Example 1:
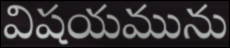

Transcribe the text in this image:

విషయమును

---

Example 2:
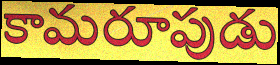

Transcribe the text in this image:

కామరూపుడు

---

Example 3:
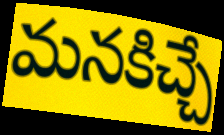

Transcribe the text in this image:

మనకిచ్చే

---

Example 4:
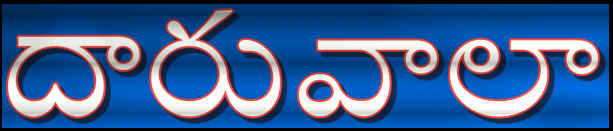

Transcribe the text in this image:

దారువాలా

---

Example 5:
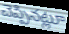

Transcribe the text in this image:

చెప్పినట్లూ